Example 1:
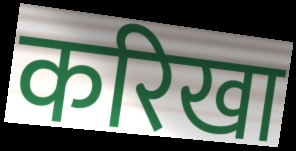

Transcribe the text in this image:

करिखा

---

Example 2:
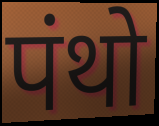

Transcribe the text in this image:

पंथो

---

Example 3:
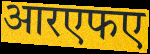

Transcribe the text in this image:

आरएफए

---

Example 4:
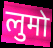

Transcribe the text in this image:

लुमो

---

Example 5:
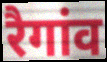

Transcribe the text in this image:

रैगांव